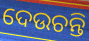
ଦେଉଚନ୍ତି